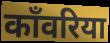
काँवरिया